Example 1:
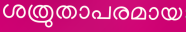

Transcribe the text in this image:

ശത്രുതാപരമായ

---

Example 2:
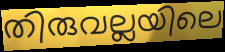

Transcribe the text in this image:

തിരുവല്ലയിലെ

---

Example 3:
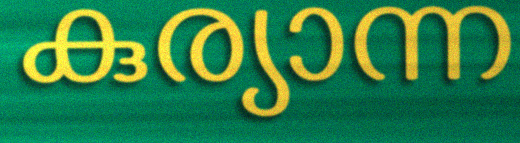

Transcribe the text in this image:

കുര്യാന്ന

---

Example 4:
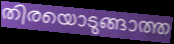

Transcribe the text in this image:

തിരയൊടുങ്ങാത്ത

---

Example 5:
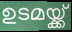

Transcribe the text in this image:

ഉടമയ്ക്ക്